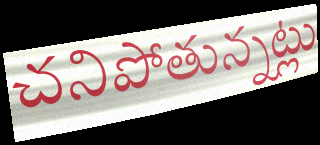
చనిపోతున్నట్లు